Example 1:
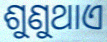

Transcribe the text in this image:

ଶୁଣୁଥାଏ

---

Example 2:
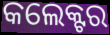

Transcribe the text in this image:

କଲେକ୍ଟର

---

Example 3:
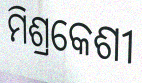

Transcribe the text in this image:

ମିଶ୍ରକେଶୀ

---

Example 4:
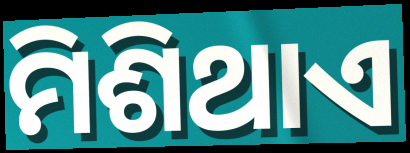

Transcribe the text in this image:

ମିଶିଥାଏ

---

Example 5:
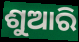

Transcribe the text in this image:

ଶୁଆରି